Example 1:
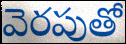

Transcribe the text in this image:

వెరపుతో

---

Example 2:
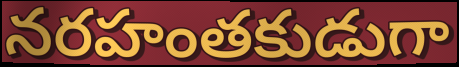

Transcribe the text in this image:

నరహంతకుడుగా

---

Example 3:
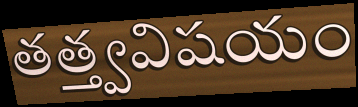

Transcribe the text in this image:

తత్త్వవిషయం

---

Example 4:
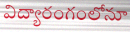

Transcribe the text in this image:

విద్యారంగంలోనూ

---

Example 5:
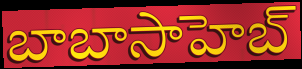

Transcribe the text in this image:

బాబాసాహెబ్